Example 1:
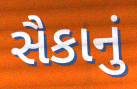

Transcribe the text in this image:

સૈકાનું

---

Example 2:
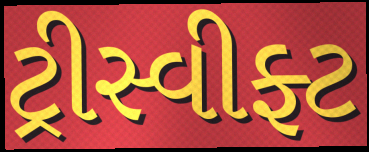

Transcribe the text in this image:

ટ્રીસ્વીફ્ટ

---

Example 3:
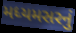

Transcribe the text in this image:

મધ્યમસરનું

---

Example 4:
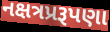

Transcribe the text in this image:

નક્ષત્રપ્રરૂપણા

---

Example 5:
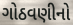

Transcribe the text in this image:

ગોઠવણીનો